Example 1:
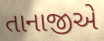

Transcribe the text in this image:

તાનાજીએ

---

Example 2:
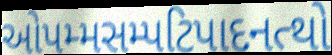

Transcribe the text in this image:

ઓપમ્મસમ્પટિપાદનત્થો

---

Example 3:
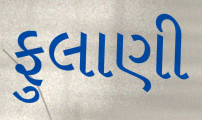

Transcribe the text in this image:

ફુલાણી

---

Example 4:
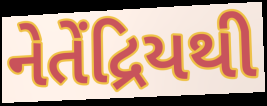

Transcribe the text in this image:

નેતેંદ્રિયથી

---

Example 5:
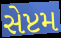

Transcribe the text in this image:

સેપ્ટમ